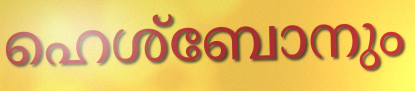
ഹെശ്ബോനും